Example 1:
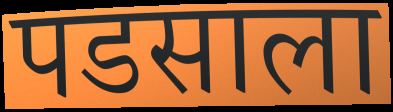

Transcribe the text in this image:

पडसाला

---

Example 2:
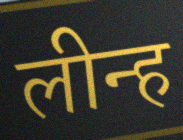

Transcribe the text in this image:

लीन्ह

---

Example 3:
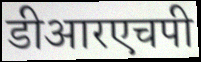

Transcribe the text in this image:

डीआरएचपी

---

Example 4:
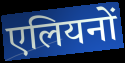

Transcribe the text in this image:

एलियनों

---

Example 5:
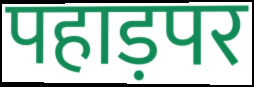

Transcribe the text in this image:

पहाड़पर